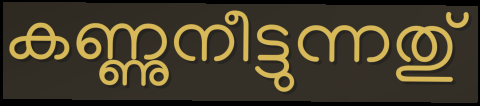
കണ്ണുനീട്ടുന്നതു്